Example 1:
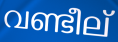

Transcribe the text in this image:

വണ്ടീല്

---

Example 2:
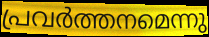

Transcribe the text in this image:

പ്രവർത്തനമെന്നു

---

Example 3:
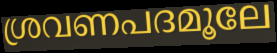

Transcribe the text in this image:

ശ്രവണപദമൂലേ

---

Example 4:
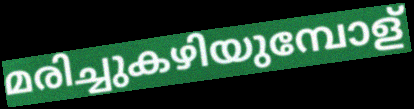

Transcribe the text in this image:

മരിച്ചുകഴിയുമ്പോള്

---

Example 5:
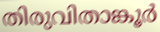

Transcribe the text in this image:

തിരുവിതാങ്കൂർ